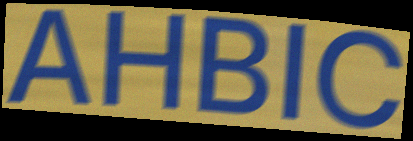
AHBIC